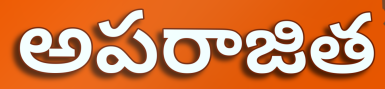
అపరాజిత